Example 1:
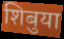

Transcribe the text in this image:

शिबुया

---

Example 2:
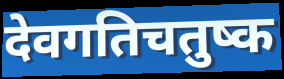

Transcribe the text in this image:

देवगतिचतुष्क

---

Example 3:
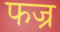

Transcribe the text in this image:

फज्र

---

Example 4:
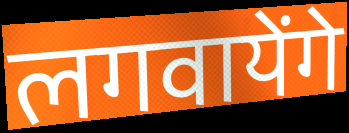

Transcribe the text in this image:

लगवायेंगे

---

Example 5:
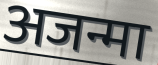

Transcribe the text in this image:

अजन्‍मा